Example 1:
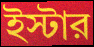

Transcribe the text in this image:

ইস্টার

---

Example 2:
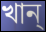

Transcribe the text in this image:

খান্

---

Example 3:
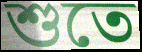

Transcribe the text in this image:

শুতে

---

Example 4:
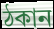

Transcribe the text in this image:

ঠকান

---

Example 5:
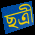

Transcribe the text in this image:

ছত্রী